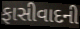
ફાસીવાદની